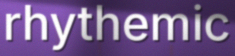
rhythemic